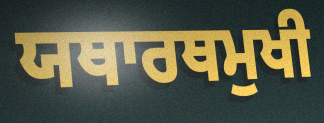
ਯਥਾਰਥਮੁਖੀ